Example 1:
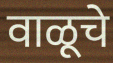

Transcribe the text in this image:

वाळूचे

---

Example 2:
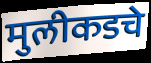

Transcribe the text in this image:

मुलीकडचे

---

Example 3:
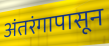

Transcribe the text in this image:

अंतरंगापासून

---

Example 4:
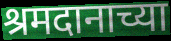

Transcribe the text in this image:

श्रमदानाच्या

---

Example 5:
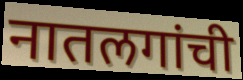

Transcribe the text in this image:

नातलगांची